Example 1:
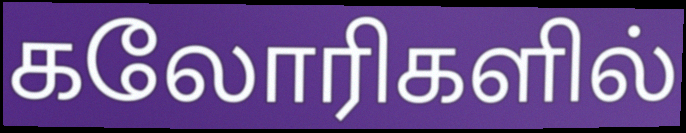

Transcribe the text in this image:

கலோரிகளில்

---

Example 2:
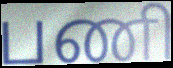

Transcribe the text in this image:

பணி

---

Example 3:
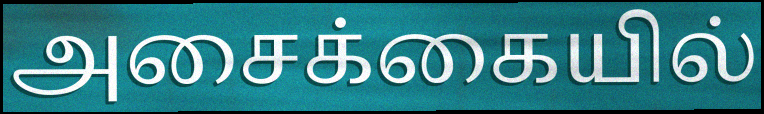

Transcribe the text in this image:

அசைக்கையில்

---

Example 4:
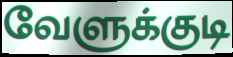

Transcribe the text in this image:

வேளுக்குடி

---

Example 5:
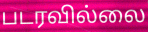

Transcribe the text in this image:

படரவில்லை